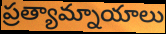
ప్రత్యామ్నాయాలు